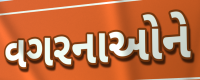
વગરનાઓને